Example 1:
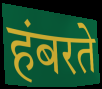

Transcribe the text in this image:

हंबरते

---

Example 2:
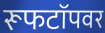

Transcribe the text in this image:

रूफटॉपवर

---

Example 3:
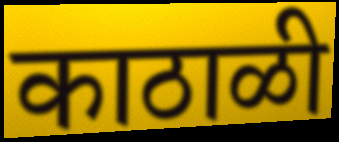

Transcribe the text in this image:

काठाळी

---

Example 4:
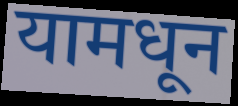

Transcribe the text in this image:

यामधून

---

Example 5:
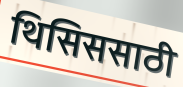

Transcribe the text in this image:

थिसिससाठी